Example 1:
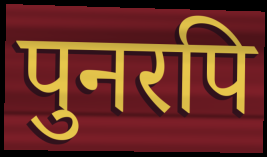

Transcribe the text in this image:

पुनरपि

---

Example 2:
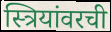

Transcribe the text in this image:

स्त्रियांवरची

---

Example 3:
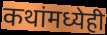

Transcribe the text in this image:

कथांमध्येही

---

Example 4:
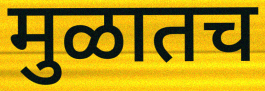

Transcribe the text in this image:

मुळातच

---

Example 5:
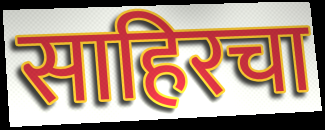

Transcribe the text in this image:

साहिरचा